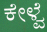
ಕೇಳ್ವೆ